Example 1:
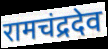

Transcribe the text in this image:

रामचंद्रदेव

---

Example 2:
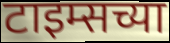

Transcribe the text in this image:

टाइम्सच्या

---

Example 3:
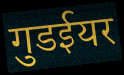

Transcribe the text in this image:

गुडईयर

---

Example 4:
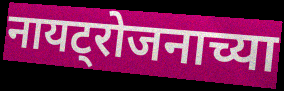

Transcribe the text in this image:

नायट्रोजनाच्या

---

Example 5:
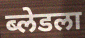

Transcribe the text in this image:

ब्लेडला